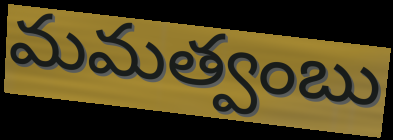
మమత్వంబు